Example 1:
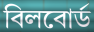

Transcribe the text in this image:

বিলবোর্ড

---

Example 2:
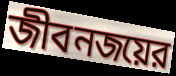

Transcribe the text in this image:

জীবনজয়ের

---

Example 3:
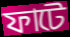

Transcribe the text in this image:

ফাটে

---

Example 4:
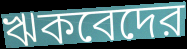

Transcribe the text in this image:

ঋকবেদের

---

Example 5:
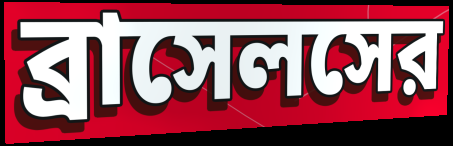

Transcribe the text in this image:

ব্রাসেলসের